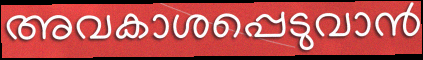
അവകാശപ്പെടുവാൻ